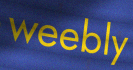
weebly